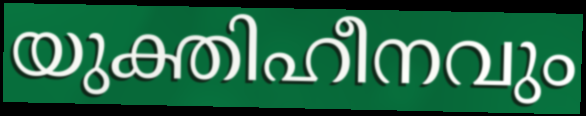
യുക്തിഹീനവും